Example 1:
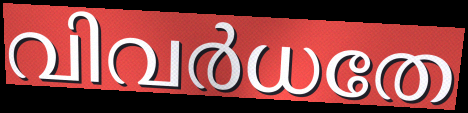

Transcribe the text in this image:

വിവർധതേ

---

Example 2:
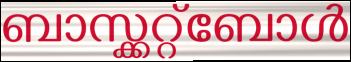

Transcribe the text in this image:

ബാസ്ക്കറ്റ്ബോൾ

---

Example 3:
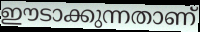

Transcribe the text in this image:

ഈടാക്കുന്നതാണ്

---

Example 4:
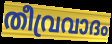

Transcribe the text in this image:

തീവ്രവാദം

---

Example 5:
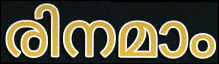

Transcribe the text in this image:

രിനമാം